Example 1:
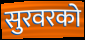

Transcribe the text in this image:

सुरवरको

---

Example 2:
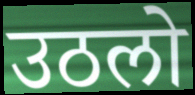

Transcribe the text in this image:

उठलो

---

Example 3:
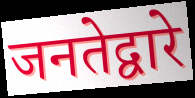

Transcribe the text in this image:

जनतेद्वारे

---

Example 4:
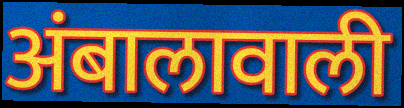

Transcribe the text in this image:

अंबालावाली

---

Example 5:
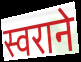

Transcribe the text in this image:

स्वराने